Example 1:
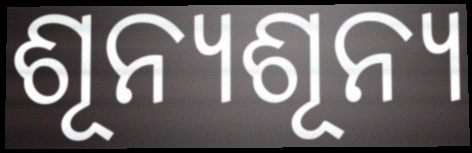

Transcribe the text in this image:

ଶୂନ୍ୟଶୂନ୍ୟ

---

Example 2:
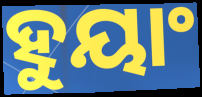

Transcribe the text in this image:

ହୁୟାଂ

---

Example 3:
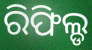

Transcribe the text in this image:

ରିଫିଲ୍ଡ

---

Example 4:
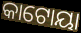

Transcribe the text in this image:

କାଟୋୟା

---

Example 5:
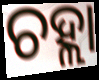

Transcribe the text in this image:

ଚହ୍ଲା